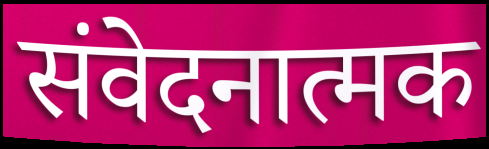
संवेदनात्मक